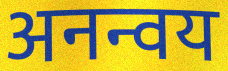
अनन्वय